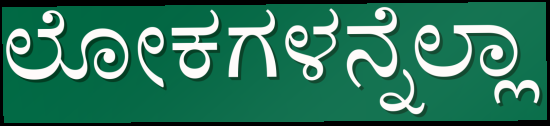
ಲೋಕಗಳನ್ನೆಲ್ಲಾ